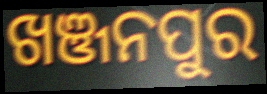
ଖଞ୍ଜନପୁର